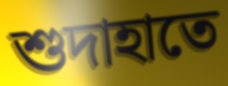
শুদাহাতে